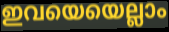
ഇവയെയെല്ലാം